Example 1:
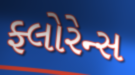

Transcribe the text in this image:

ફ્લોરેન્સ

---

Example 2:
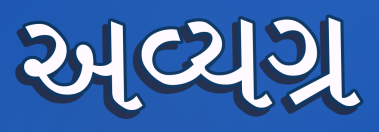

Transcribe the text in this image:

અવ્યગ્ર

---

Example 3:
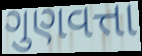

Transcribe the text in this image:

ગુણવત્તા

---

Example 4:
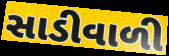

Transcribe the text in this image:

સાડીવાળી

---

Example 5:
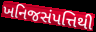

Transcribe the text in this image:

ખનિજસંપત્તિથી